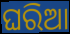
ଘରିଆ